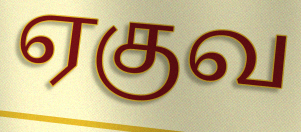
ஏகுவ